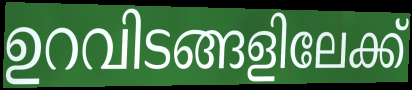
ഉറവിടങ്ങളിലേക്ക്